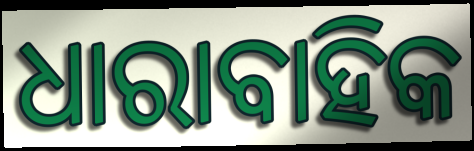
ଧାରାବାହିକ